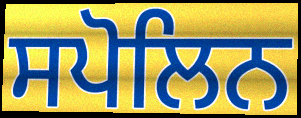
ਸਪੋਲਿਨ